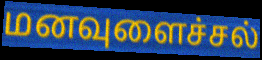
மனவுளைச்சல்